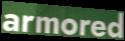
armored